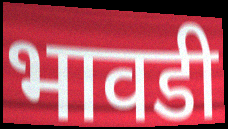
भावडी